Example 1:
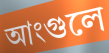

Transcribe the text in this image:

আংগুলে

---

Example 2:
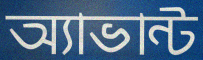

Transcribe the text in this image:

অ্যাভান্ট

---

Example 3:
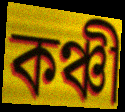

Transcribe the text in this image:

কঞ্চী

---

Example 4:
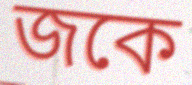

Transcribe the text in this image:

জকে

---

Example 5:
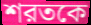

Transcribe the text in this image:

শরতকে